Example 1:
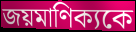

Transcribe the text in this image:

জয়মাণিক্যকে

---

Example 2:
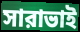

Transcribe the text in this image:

সারাভাই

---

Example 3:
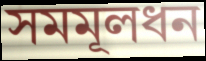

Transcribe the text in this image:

সমমূলধন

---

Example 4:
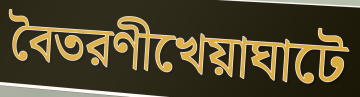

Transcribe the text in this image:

বৈতরণীখেয়াঘাটে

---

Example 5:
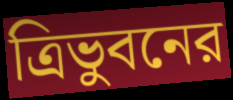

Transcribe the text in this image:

ত্রিভুবনের